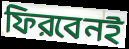
ফিরবেনই